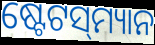
ଷ୍ଟେଟସ୍‌ମ୍ୟାନ